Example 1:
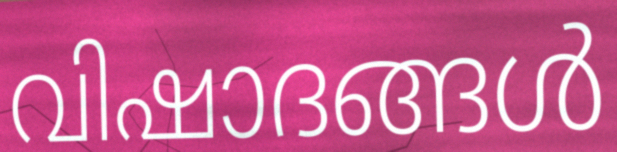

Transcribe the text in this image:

വിഷാദങ്ങൾ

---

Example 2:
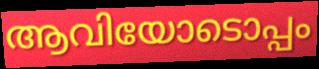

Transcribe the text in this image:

ആവിയോടൊപ്പം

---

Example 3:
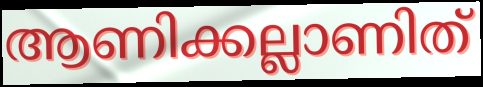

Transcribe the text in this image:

ആണിക്കല്ലാണിത്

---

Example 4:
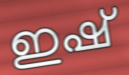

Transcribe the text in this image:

ഇഷ്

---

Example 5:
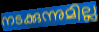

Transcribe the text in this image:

നടക്കുന്നുമില്ല